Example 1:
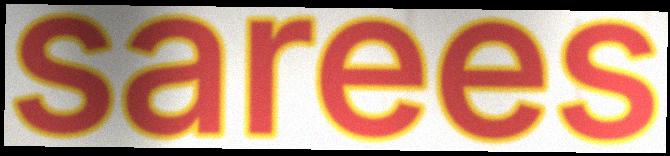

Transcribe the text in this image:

sarees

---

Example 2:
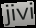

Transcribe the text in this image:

jivi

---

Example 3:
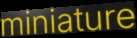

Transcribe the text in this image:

miniature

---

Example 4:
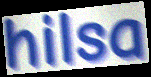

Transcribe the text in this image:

hilsa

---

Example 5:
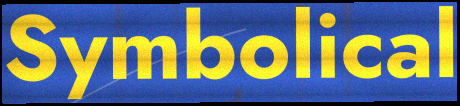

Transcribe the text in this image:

Symbolical